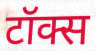
टॉक्स